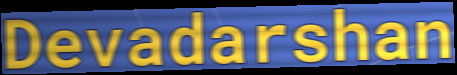
Devadarshan